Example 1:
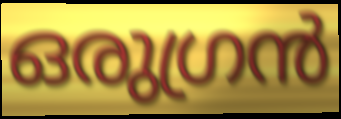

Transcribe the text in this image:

ഒരുഗ്രൻ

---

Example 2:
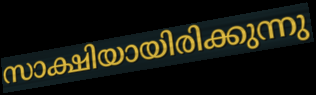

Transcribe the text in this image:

സാക്ഷിയായിരിക്കുന്നു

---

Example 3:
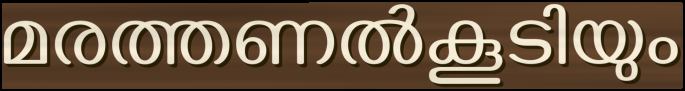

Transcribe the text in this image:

മരത്തണൽകൂടിയും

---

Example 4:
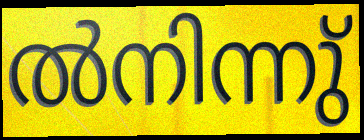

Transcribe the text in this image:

ൽനിന്നു്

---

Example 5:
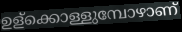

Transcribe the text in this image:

ഉള്ക്കൊള്ളുമ്പോഴാണ്